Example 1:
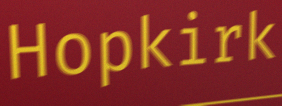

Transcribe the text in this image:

Hopkirk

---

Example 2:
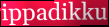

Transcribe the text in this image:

ippadikku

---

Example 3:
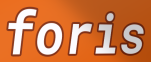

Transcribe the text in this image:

foris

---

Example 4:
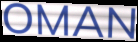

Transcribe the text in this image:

OMAN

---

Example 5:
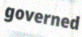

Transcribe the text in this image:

governed